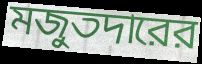
মজুতদারের